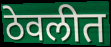
ठेवलीत